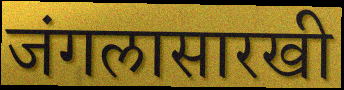
जंगलासारखी